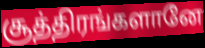
சூத்திரங்களானே